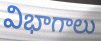
విభాగాలు